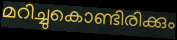
മറിച്ചുകൊണ്ടിരിക്കും